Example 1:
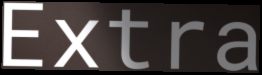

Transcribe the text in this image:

Extra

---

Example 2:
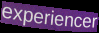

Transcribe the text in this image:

experiencer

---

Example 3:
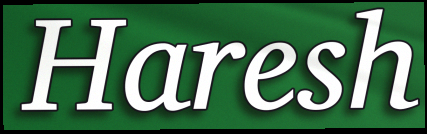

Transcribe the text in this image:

Haresh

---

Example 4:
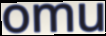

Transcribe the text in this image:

omu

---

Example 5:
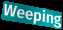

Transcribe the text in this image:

Weeping